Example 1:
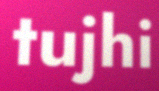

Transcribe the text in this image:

tujhi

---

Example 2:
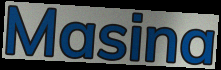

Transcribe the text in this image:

Masina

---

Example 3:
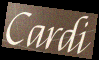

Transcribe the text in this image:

Cardi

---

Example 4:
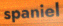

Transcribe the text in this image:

spaniel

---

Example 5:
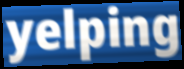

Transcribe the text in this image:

yelping